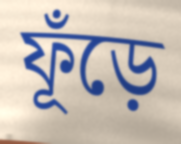
ফূঁড়ে